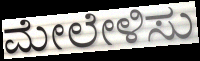
ಮೇಲೇಳಿಸು